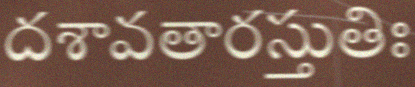
దశావతారస్తుతిః